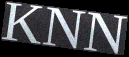
KNN